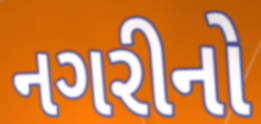
નગરીનો